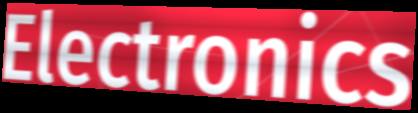
Electronics